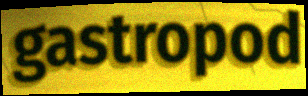
gastropod